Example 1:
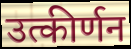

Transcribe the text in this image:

उत्कीर्णन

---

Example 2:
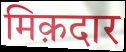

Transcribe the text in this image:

मिक़दार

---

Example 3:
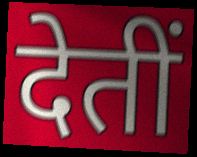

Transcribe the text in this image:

देतीं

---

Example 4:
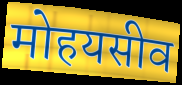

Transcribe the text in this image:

मोहयसीव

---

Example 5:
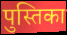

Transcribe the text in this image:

पुस्तिका